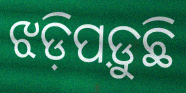
ଝଡ଼ିପଡ଼ୁଛି